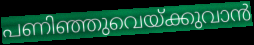
പണിഞ്ഞുവെയ്ക്കുവാൻ